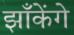
झाँकेंगे